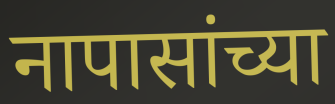
नापासांच्या